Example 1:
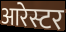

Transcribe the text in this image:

आरेस्टर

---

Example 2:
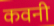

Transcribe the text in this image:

कवनी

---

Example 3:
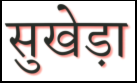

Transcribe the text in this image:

सुखेड़ा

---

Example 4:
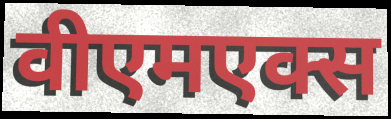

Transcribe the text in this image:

वीएमएक्स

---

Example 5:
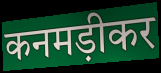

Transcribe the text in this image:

कनमड़ीकर